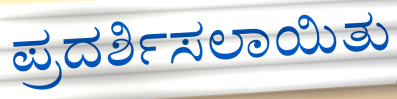
ಪ್ರದರ್ಶಿಸಲಾಯಿತು